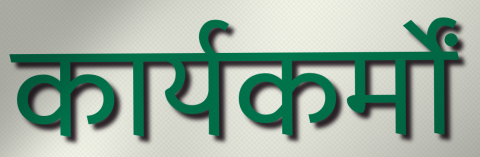
कार्यकर्मों